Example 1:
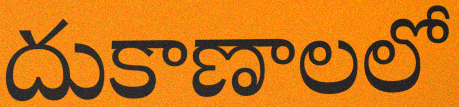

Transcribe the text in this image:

దుకాణాలలో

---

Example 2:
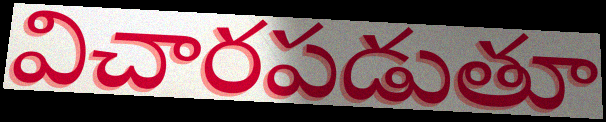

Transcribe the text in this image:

విచారపడుతూ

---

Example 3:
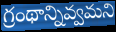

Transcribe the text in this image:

గ్రంథాన్నివ్వమని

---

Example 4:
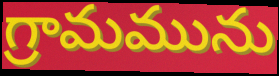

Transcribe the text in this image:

గ్రామమును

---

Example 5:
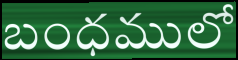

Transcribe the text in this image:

బంధములో